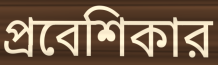
প্রবেশিকার